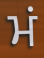
ਮਂ